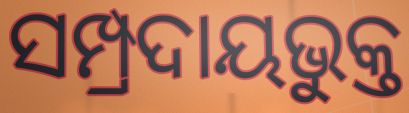
ସମ୍ପ୍ରଦାୟଭୁକ୍ତ